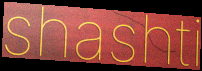
shashti